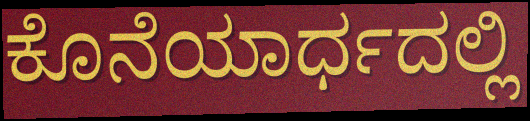
ಕೊನೆಯಾರ್ಧದಲ್ಲಿ